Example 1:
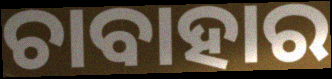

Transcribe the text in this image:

ଚାବାହାର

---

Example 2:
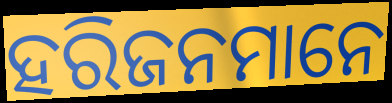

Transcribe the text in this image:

ହରିଜନମାନେ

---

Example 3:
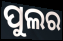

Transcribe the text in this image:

ପୁଲର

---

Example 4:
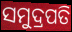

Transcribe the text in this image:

ସମୁଦ୍ରପତି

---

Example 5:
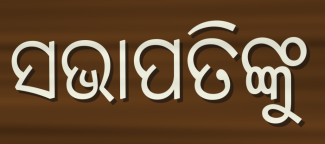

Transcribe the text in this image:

ସଭାପତିଙ୍କୁ